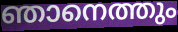
ഞാനെത്തും